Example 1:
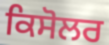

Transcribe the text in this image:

ਕਿਸੋਲਰ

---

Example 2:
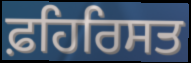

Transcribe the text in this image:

ਫ਼ਹਿਰਿਸਤ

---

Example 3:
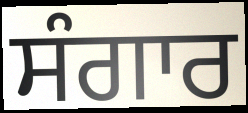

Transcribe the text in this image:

ਸੰਗਾਰ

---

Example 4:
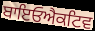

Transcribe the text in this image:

ਬਾਇਓਐਕਟਿਵ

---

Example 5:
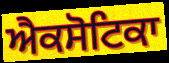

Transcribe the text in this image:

ਐਕਸੋਟਿਕਾ